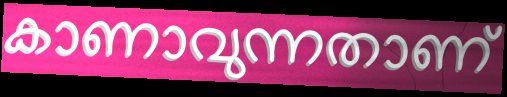
കാണാവുന്നതാണ്